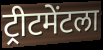
ट्रीटमेंटला